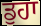
ਡੁਹਾ